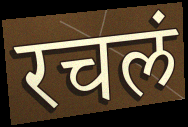
रचलं